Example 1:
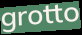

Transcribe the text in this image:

grotto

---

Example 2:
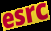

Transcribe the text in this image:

esrc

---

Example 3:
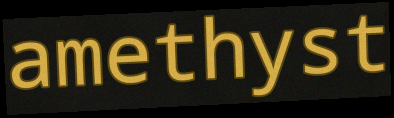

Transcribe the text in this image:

amethyst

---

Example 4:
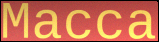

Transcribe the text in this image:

Macca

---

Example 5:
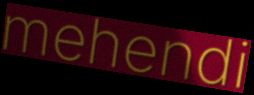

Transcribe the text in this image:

mehendi